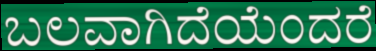
ಬಲವಾಗಿದೆಯೆಂದರೆ